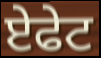
ਏਫੇਟ